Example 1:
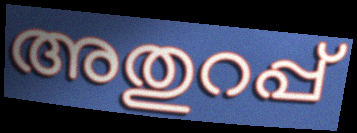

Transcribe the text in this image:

അതുറപ്പ്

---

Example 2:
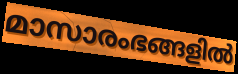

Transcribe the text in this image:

മാസാരംഭങ്ങളിൽ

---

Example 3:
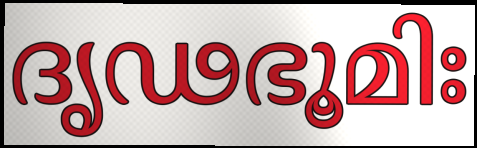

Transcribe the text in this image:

ദൃഢഭൂമിഃ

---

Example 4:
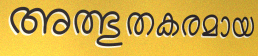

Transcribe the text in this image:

അത്ഭുതകരമായ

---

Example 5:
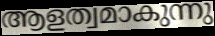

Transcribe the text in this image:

ആളത്വമാകുന്നു